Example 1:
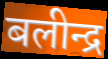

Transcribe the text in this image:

बलीन्द्र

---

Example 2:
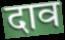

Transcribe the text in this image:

दाव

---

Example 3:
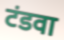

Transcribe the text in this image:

टंडवा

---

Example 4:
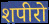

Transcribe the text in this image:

शपीरो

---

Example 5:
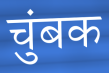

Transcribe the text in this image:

चुंबक